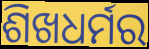
ଶିଖଧର୍ମର